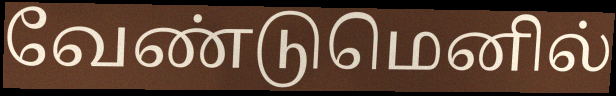
வேண்டுமெனில்